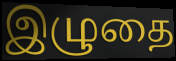
இழுதை